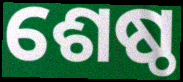
ଶେଷ୍ଠ